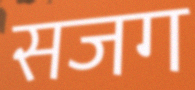
सजग